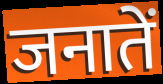
जनातें